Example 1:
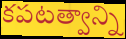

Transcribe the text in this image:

కపటత్వాన్ని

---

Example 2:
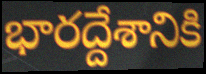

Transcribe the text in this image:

భారద్దేశానికి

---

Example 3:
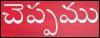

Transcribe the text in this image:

చెప్పము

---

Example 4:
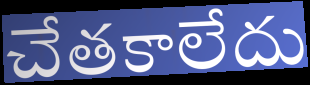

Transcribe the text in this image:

చేతకాలేదు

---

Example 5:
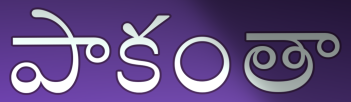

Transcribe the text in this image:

పాకంతా